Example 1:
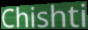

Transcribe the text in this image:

Chishti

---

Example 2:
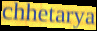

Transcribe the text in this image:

chhetarya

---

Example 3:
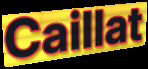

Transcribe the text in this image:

Caillat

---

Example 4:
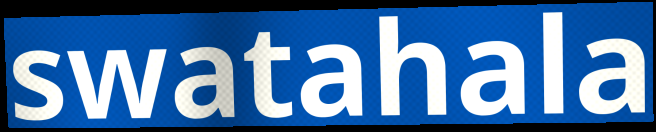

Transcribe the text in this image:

swatahala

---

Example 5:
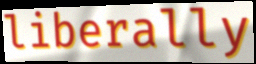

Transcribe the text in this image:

liberally